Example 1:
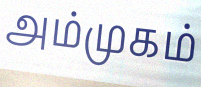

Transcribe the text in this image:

அம்முகம்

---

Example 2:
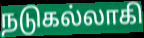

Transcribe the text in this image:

நடுகல்லாகி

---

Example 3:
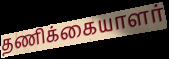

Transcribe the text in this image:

தணிக்கையாளர்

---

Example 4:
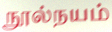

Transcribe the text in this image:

நூல்நயம்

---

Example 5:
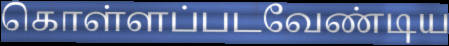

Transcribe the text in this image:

கொள்ளப்படவேண்டிய